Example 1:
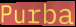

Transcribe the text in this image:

Purba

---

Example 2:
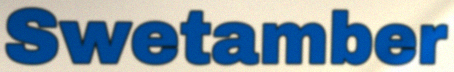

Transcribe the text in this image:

Swetamber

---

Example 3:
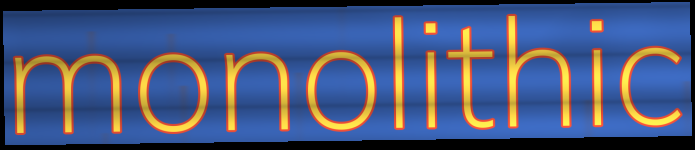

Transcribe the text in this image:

monolithic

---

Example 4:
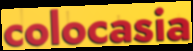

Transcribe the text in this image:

colocasia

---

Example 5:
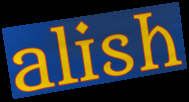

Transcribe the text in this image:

alish